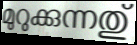
മുറുക്കുന്നതു്